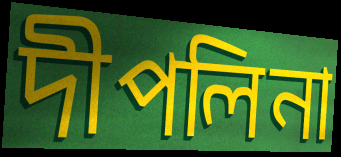
দীপলিনা